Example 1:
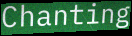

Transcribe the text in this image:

Chanting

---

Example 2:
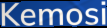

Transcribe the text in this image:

Kemosi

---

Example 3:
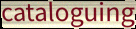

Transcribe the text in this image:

cataloguing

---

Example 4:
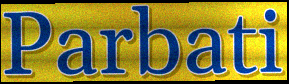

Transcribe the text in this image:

Parbati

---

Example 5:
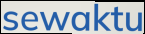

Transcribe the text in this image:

sewaktu